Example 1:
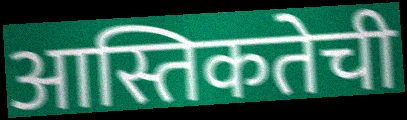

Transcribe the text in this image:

आस्तिकतेची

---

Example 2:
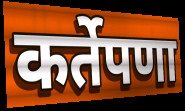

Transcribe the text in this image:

कर्तेपणा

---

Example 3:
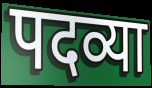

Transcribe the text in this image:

पदव्या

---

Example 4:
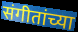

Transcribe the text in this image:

संगीतांच्या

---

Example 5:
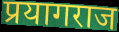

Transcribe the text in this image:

प्रयागराज